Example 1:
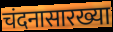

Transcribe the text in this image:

चंदनासारख्या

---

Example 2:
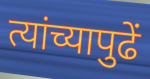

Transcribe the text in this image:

त्यांच्यापुढें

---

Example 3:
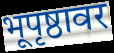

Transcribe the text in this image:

भूपृष्ठावर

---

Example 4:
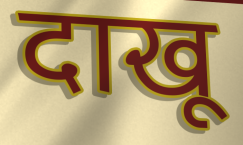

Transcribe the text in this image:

दाखू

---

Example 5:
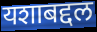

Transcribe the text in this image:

यशाबद्दल